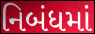
નિબંધમાં